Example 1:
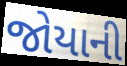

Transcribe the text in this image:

જોયાની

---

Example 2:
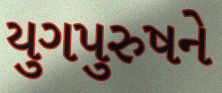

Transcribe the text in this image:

યુગપુરુષને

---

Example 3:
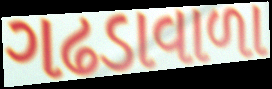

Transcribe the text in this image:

ગઢડાવાળા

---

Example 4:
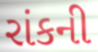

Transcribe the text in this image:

રાંકની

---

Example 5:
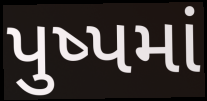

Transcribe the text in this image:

પુષ્પમાં